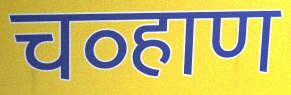
चव्हाण